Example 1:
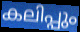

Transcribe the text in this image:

കലിപ്പും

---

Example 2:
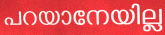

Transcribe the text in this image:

പറയാനേയില്ല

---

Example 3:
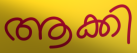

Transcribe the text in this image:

ആക്കി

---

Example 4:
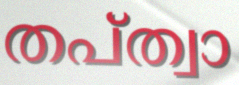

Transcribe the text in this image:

തപ്ത്വാ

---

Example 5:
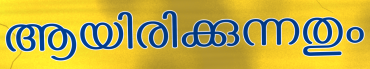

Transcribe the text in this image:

ആയിരിക്കുന്നതും